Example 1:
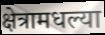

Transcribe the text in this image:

क्षेत्रामधल्या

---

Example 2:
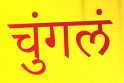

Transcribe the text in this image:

चुंगलं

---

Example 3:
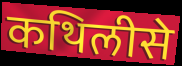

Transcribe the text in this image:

कथिलीसे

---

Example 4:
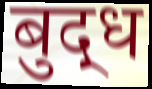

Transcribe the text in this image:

बुद्ध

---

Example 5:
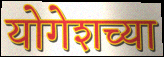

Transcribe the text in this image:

योगेशच्या